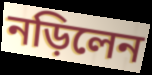
নড়িলেন